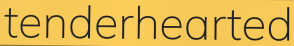
tenderhearted